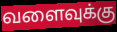
வளைவுக்கு